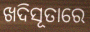
ଖଦିସୂତାରେ